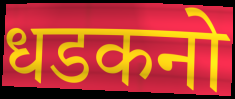
धडकनो